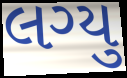
લગ્યુ